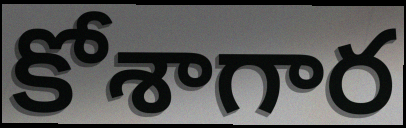
కోశాగార